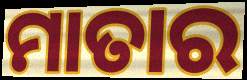
ମାତାର